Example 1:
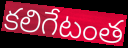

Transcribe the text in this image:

కలిగేటంత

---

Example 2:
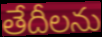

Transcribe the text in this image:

తేదీలను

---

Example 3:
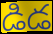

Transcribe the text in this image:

డిడ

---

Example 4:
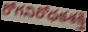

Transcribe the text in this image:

రోగనిరోధకశక్తి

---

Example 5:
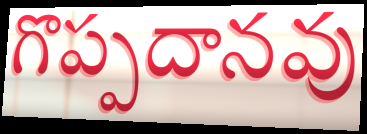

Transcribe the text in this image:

గొప్పదానవు